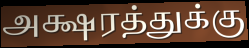
அக்ஷரத்துக்கு